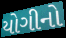
યોગીનો